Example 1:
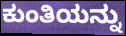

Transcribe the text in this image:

ಕುಂತಿಯನ್ನು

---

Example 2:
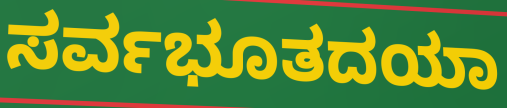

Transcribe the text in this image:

ಸರ್ವಭೂತದಯಾ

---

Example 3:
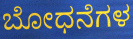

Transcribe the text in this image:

ಬೋಧನೆಗಳ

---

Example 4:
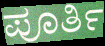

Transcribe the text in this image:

ಪೂರ್ತಿ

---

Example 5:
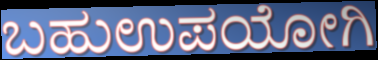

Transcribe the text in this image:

ಬಹುಉಪಯೋಗಿ